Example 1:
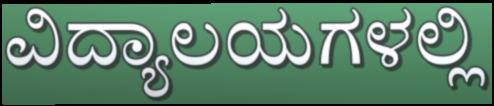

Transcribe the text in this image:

ವಿದ್ಯಾಲಯಗಳಲ್ಲಿ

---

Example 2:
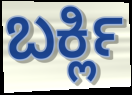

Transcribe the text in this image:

ಬರ್ಕ್ಲಿ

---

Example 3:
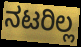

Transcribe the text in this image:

ನಟರಿಲ್ಲ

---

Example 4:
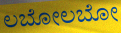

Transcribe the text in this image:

ಲಬೋಲಬೋ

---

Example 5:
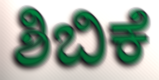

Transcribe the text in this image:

ಶಿಬಿಕೆ